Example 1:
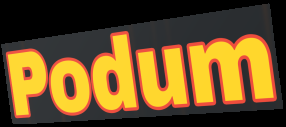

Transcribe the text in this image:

Podum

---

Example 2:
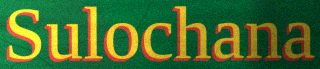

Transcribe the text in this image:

Sulochana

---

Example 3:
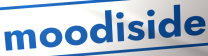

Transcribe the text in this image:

moodiside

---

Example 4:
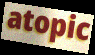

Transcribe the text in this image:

atopic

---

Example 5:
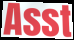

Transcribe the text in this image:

Asst